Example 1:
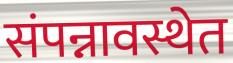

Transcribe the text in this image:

संपन्नावस्थेत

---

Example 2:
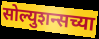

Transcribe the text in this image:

सोल्युशन्सच्या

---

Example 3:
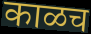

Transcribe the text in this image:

काळच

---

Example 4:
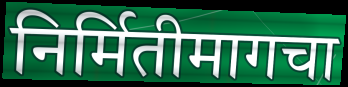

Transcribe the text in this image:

निर्मितीमागचा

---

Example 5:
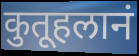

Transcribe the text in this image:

कुतूहलानं